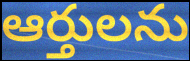
ఆర్తులను